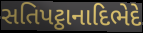
સતિપટ્ઠાનાદિભેદે